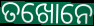
ତଖୋନେ